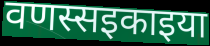
वणस्सइकाइया